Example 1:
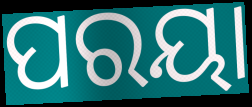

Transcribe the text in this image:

ପରୟା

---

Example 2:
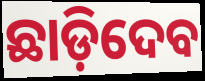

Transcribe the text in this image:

ଛାଡ଼ିଦେବ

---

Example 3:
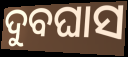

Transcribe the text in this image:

ଦୁବଘାସ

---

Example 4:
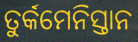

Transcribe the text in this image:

ତୁର୍କମେନିସ୍ତାନ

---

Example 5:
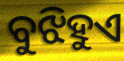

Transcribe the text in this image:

ବୁଝିହୁଏ